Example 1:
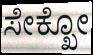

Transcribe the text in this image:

ಸೇಕ್ಖೋ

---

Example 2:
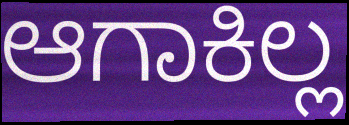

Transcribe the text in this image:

ಆಗಾಕಿಲ್ಲ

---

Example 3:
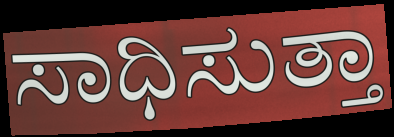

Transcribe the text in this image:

ಸಾಧಿಸುತ್ತಾ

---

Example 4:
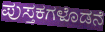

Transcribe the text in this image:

ಪುಸ್ತಕಗಳೊಡನೆ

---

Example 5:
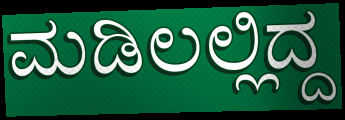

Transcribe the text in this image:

ಮಡಿಲಲ್ಲಿದ್ದ